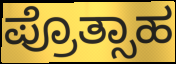
ಪ್ರೊತ್ಸಾಹ